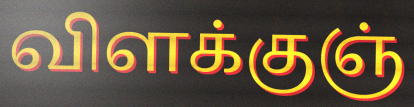
விளக்குஞ்